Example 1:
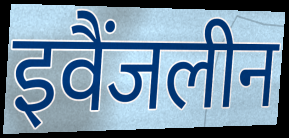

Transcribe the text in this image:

इवैंजलीन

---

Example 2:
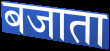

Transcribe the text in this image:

बजाता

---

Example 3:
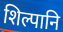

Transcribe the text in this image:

शिल्पानि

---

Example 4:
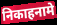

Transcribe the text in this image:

निकाहनामे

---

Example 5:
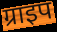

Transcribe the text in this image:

ग्राइप